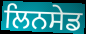
ਲਿਨਸੇਡ